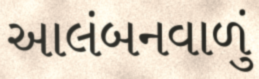
આલંબનવાળું